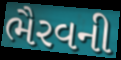
ભૈરવની